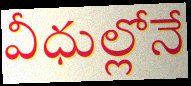
వీధుల్లోనే